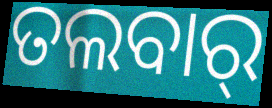
ତଲବାର୍